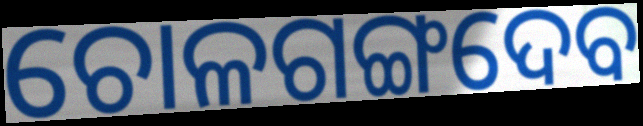
ଚୋଳଗଙ୍ଗଦେବ